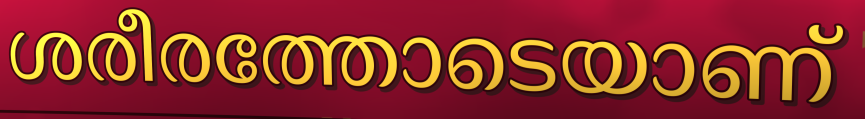
ശരീരത്തോടെയാണ്